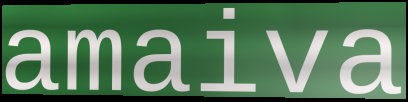
amaiva